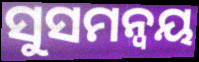
ସୁସମନ୍ୱୟ